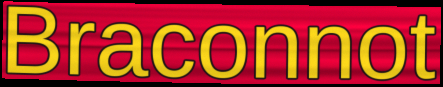
Braconnot